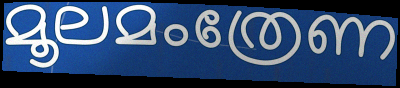
മൂലമംത്രേണ